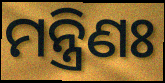
ମନ୍ତ୍ରିଣଃ